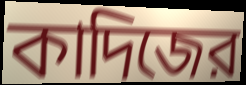
কাদিজের